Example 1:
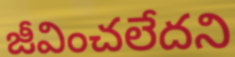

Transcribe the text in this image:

జీవించలేదని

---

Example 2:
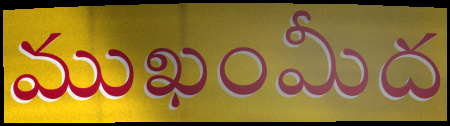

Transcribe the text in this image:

ముఖంమీద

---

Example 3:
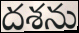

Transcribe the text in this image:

దశను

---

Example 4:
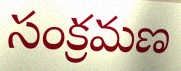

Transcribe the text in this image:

సంక్రమణ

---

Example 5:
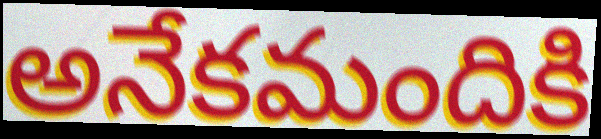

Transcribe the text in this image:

అనేకమందికి